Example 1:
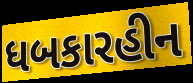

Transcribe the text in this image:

ધબકારહીન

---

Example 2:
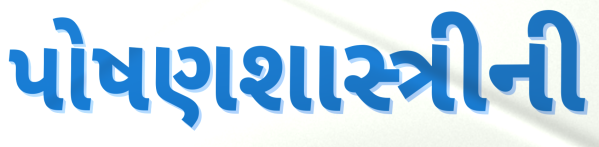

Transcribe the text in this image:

પોષણશાસ્ત્રીની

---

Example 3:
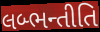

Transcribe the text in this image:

લબ્ભન્તીતિ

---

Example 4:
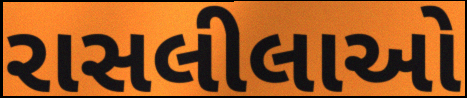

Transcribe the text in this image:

રાસલીલાઓ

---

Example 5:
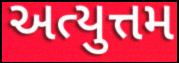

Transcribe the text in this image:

અત્યુત્તમ